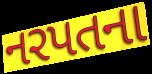
નરપતના